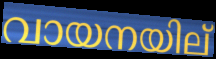
വായനയില്